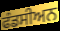
ਫੰਡਸੀਅਨ